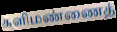
களிமண்ணைத்